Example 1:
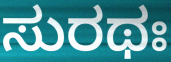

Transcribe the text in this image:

ಸುರಥಃ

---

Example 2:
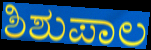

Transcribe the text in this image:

ಶಿಶುಪಾಲ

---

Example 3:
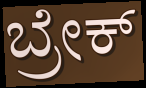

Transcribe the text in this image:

ಬ್ರೇಕ್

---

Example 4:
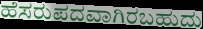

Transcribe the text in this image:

ಹೆಸರುಪದವಾಗಿರಬಹುದು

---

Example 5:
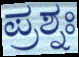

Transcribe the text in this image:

ಪ್ರಶ್ನಃ